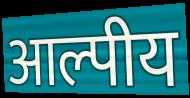
आल्पीय